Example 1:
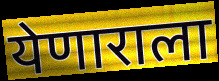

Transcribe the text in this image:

येणाराला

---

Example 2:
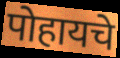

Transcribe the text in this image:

पोहायचे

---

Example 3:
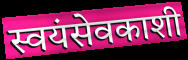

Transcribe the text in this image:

स्वयंसेवकाशी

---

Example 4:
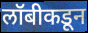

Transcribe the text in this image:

लॉबीकडून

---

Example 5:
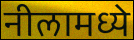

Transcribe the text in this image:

नीलामध्ये